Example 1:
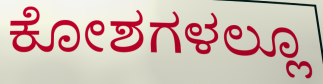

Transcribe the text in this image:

ಕೋಶಗಳಲ್ಲೂ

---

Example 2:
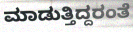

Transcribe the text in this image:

ಮಾಡುತ್ತಿದ್ದರಂತೆ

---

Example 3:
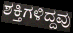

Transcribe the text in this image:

ಶಕ್ತಿಗಳಿದ್ದವು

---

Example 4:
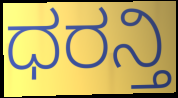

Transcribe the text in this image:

ಧರನ್ತಿ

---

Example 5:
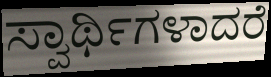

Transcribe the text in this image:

ಸ್ವಾರ್ಥಿಗಳಾದರೆ